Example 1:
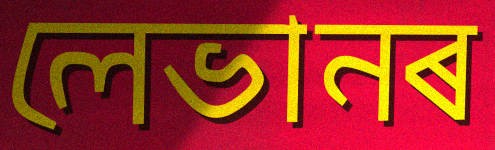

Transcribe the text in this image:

লেভানৰ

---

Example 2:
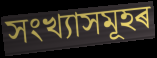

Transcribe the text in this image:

সংখ্যাসমূহৰ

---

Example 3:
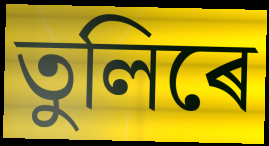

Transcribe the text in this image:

তুলিৰে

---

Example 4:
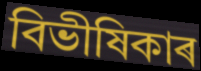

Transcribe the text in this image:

বিভীষিকাৰ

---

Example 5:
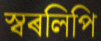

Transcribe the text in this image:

স্বৰলিপি